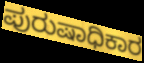
ಪುರುಷಾಧಿಕಾರ